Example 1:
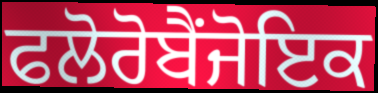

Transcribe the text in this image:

ਫਲੋਰੋਬੈਂਜੋਇਕ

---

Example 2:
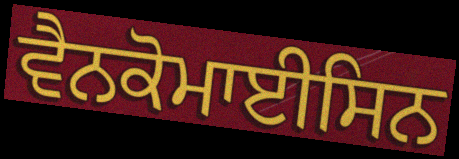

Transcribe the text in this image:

ਵੈਨਕੋਮਾਈਸਿਨ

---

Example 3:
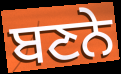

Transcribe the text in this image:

ਬਣਨੇ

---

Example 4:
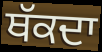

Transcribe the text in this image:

ਥੱਕਦਾ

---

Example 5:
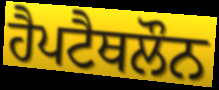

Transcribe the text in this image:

ਹੈਪਟੈਥਲੌਨ